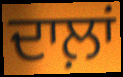
ਦਾਲ਼ਾਂ